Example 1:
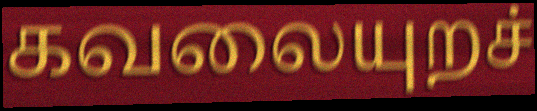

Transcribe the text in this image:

கவலையுறச்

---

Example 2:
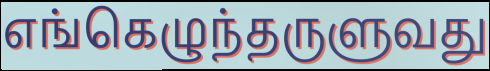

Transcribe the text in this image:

எங்கெழுந்தருளுவது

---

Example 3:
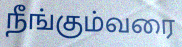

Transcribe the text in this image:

நீங்கும்வரை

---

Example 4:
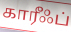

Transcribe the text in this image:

காரீஃப்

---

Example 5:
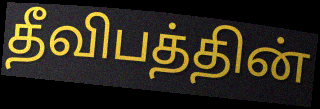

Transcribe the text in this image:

தீவிபத்தின்